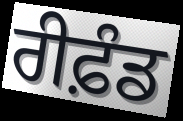
ਰੀਫ਼ੰਡ